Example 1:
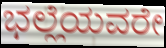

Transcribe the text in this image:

ಭಲ್ಲೆಯವರೇ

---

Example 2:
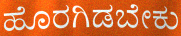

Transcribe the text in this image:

ಹೊರಗಿಡಬೇಕು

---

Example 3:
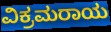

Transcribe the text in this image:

ವಿಕ್ರಮರಾಯ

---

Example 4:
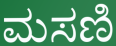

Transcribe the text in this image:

ಮಸಣಿ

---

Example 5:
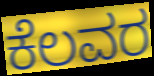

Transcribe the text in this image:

ಕೆಲವರ